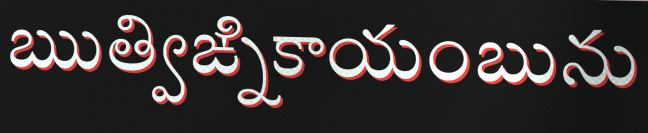
ఋత్విఙ్నికాయంబును